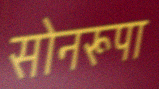
सोनरूपा